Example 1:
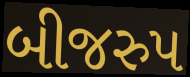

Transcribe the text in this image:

બીજરુપ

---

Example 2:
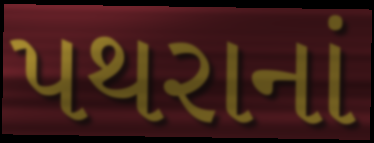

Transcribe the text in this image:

પથરાનાં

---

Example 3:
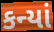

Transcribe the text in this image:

કન્યાં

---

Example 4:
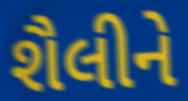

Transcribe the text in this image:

શૈલીને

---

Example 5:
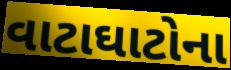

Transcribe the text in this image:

વાટાઘાટોના